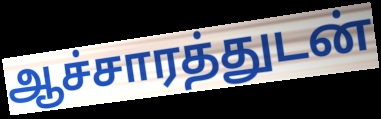
ஆச்சாரத்துடன்